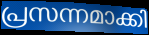
പ്രസന്നമാക്കി